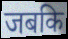
जबकि